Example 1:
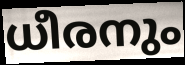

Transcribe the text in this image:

ധീരനും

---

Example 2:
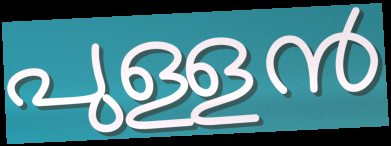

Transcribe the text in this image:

പുള്ളൻ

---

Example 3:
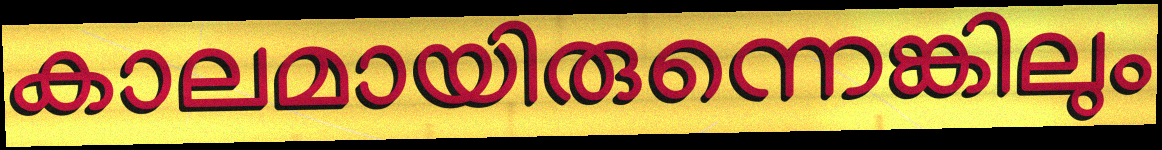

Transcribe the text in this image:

കാലമായിരുന്നെങ്കിലും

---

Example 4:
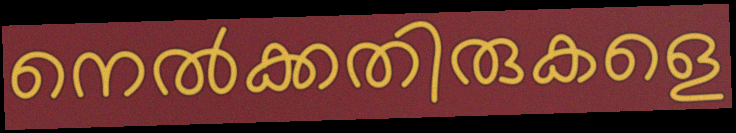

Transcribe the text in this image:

നെൽക്കതിരുകളെ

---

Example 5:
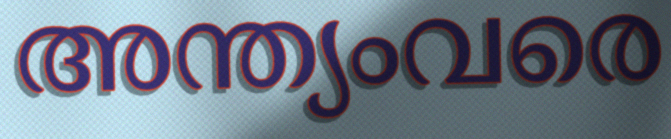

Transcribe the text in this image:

അന്ത്യംവരെ